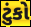
ટુંકો